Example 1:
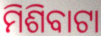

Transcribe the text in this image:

ମିଶିବାଟା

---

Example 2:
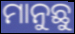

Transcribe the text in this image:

ମାନୁଛୁ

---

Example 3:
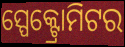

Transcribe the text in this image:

ସ୍ପେକ୍ଟ୍ରୋମିଟର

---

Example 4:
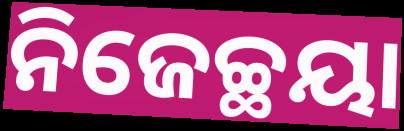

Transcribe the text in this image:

ନିଜେଚ୍ଛୟା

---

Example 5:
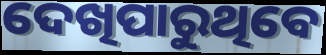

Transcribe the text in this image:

ଦେଖିପାରୁଥିବେ